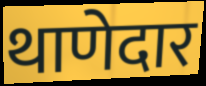
थाणेदार